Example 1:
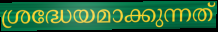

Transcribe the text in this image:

ശ്രദ്ധേയമാക്കുന്നത്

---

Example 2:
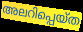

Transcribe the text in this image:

അലറിപ്പെയ്ത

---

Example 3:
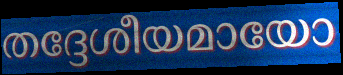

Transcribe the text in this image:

തദ്ദേശീയമായോ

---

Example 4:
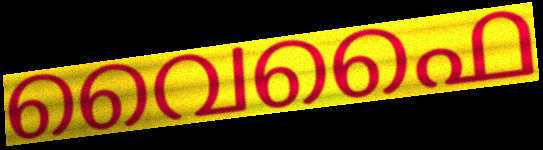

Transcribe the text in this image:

വൈഫൈ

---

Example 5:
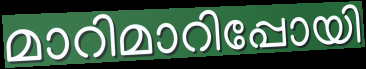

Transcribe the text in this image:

മാറിമാറിപ്പോയി